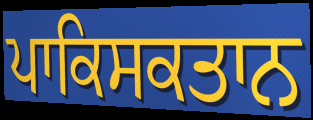
ਪਾਕਿਸਕਤਾਨ